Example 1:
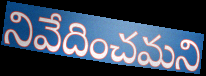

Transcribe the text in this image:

నివేదించమని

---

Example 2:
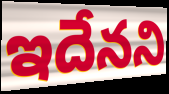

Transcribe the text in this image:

ఇదేనని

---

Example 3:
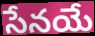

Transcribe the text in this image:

సేనయే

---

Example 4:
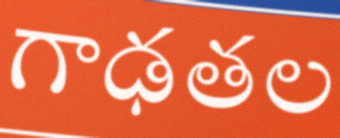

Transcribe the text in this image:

గాఢతల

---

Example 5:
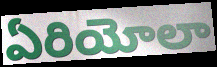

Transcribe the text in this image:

ఏరియోలా